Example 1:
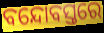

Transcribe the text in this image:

ବନ୍ଦୋବସ୍ତରେ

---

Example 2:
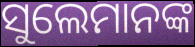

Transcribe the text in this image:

ସୁଲେମାନଙ୍କ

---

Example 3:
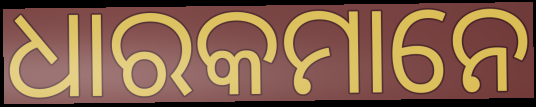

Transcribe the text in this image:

ଧାରକମାନେ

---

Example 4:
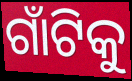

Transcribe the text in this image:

ଗାଁଟିକୁ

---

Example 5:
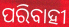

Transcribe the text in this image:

ପରିବାହୀ